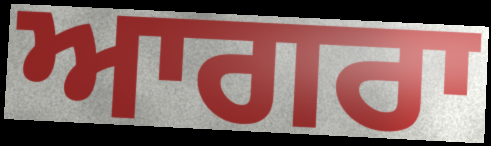
ਆਗਰਾ